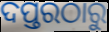
ଦପ୍ତରଠାରୁ